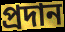
প্ৰদান